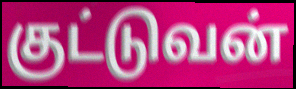
குட்டுவன்